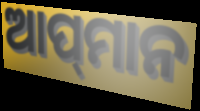
ଆପ୍‌ମାନ